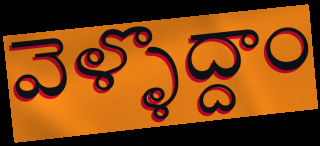
వెళ్ళొద్దాం